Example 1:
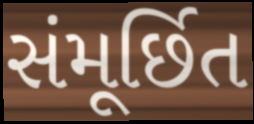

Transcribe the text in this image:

સંમૂર્છિત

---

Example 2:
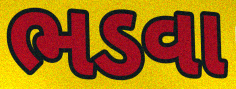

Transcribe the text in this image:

ભડવા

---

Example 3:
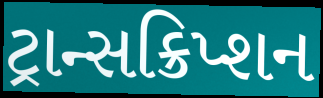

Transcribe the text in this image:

ટ્રાન્સક્રિપ્શન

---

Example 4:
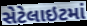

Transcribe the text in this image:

સેટેલાઇટમાં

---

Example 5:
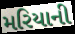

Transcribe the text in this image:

મરિયાની